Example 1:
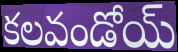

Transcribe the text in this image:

కలవండోయ్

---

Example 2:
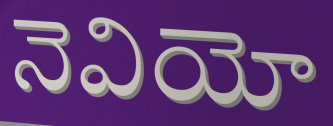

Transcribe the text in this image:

నెవియో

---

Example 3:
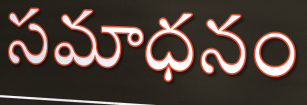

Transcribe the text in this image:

సమాధనం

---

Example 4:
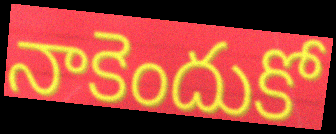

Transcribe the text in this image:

నాకెందుకో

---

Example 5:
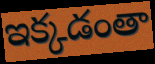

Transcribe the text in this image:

ఇక్కడంతా